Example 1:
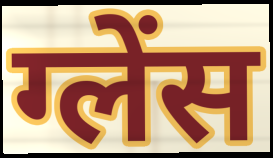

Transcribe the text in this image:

ग्लेंस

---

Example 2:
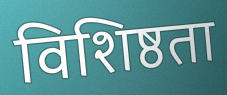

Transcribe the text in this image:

विशिष्ठता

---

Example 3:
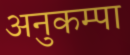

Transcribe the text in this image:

अनुकम्पा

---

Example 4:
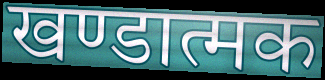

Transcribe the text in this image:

खण्डात्मक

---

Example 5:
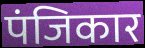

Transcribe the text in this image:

पंजिकार